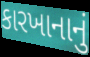
કારખાનાનું